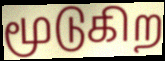
மூடுகிற